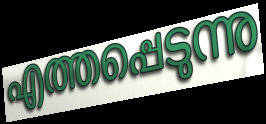
എത്തപ്പെടുന്നു